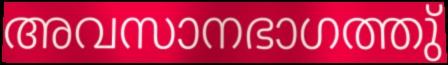
അവസാനഭാഗത്തു്